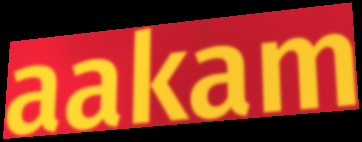
aakam